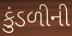
કુંડળીની